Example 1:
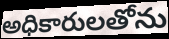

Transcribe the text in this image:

అధికారులతోను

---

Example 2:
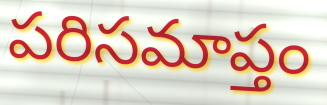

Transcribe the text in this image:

పరిసమాప్తం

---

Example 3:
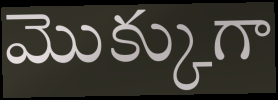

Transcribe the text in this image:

మొక్కుగా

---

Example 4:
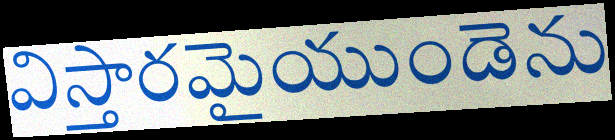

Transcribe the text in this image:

విస్తారమైయుండెను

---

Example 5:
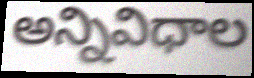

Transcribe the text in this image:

అన్నివిధాల